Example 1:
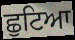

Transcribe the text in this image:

ਛੁਟਿਆ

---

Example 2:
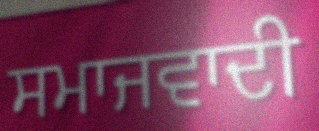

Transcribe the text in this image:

ਸਮਾਜਵਾਦੀ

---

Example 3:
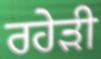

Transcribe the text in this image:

ਰਹੇੜੀ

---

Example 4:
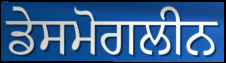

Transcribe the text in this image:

ਡੇਸਮੋਗਲੀਨ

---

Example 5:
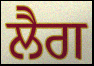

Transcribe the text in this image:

ਲੈਗ